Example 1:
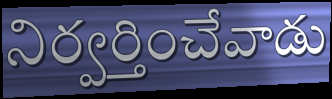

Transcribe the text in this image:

నిర్వర్తించేవాడు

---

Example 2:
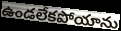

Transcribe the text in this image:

ఉండలేకపోయాను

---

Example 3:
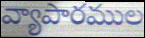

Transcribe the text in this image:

వ్యాపారముల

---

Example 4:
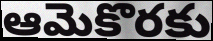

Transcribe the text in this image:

ఆమెకొరకు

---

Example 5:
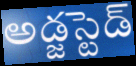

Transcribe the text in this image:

అడ్జస్టెడ్